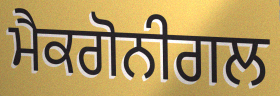
ਮੈਕਗੋਨੀਗਲ